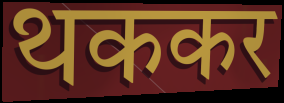
थककर